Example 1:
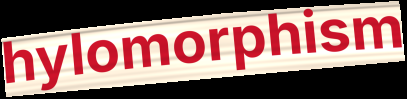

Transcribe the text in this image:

hylomorphism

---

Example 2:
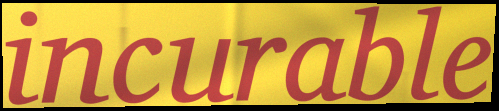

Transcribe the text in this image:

incurable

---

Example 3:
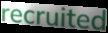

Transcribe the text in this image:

recruited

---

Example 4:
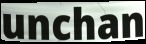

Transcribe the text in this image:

unchan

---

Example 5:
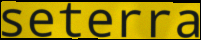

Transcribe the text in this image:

seterra